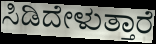
ಸಿಡಿದೇಳುತ್ತಾರೆ